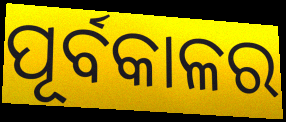
ପୂର୍ବକାଳର